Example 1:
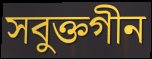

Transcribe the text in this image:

সবুক্তগীন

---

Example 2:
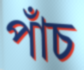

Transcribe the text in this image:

পাঁচ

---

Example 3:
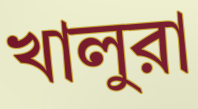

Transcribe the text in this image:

খালুরা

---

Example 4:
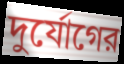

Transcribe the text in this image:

দুর্যোগের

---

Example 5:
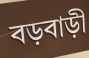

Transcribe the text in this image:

বড়বাড়ী